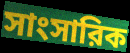
সাংসারিক